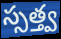
స్సత్త్వ